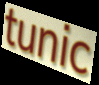
tunic